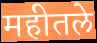
महीतले